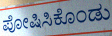
ಪೋಷಿಸಿಕೊಂಡು